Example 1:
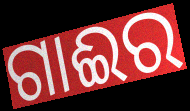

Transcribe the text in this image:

ଗାଈର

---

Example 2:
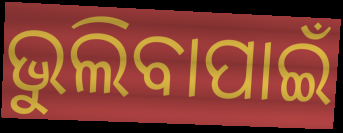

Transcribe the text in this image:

ଭୁଲିବାପାଇଁ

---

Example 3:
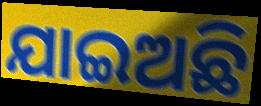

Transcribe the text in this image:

ଯାଇଅଛି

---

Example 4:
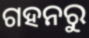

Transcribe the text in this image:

ଗହନରୁ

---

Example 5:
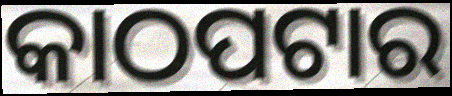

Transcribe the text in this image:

କାଠପଟାର